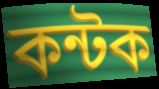
কন্টক